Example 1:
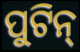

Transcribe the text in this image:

ପୁଟିନ୍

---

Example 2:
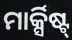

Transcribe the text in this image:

ମାର୍କ୍ସିଷ୍ଟ୍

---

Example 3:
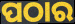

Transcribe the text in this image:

ପଠାର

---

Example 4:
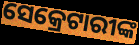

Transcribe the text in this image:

ସେକ୍ରେଟାରୀଙ୍କ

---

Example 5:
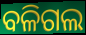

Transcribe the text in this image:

ବଳିଗଲ